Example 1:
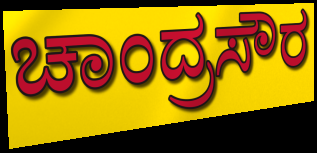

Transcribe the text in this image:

ಚಾಂದ್ರಸೌರ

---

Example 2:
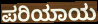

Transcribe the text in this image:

ಪರಿಯಾಯ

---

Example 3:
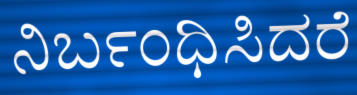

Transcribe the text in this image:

ನಿರ್ಬಂಧಿಸಿದರೆ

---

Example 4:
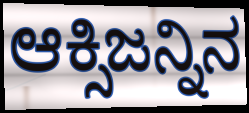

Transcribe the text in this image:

ಆಕ್ಸಿಜನ್ನಿನ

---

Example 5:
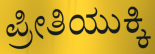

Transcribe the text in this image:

ಪ್ರೀತಿಯುಕ್ಕಿ